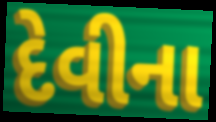
દેવીના